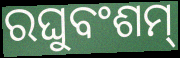
ରଘୁବଂଶମ୍